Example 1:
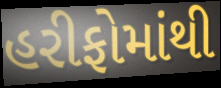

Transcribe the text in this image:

હરીફોમાંથી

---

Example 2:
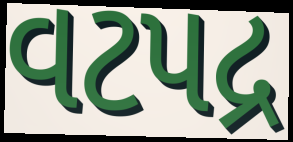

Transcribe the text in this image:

વટપદ્ર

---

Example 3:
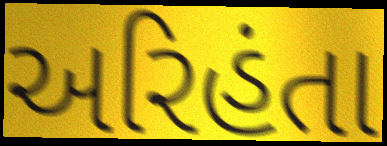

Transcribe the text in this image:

અરિહંતા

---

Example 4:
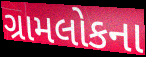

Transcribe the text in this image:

ગ્રામલોકના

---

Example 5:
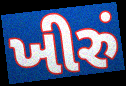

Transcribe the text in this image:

ખીરું